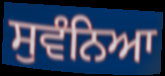
ਸੁਵੰਨਿਆ